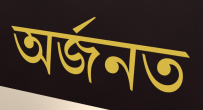
অৰ্জনত